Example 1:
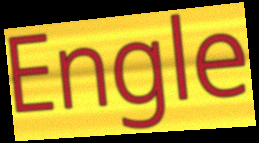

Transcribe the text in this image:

Engle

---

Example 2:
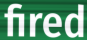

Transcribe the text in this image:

fired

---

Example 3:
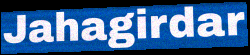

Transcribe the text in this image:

Jahagirdar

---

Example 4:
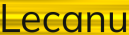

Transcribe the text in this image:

Lecanu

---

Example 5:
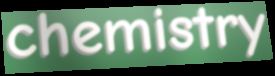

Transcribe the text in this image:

chemistry